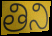
తిని